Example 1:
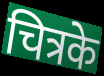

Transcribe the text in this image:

चित्रके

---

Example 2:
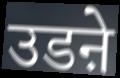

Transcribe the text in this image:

उडऩे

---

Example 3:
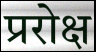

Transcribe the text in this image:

प्ररोक्ष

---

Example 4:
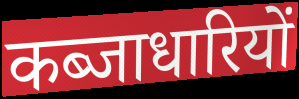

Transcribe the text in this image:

कब्जाधारियों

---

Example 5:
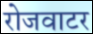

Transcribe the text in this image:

रोजवाटर